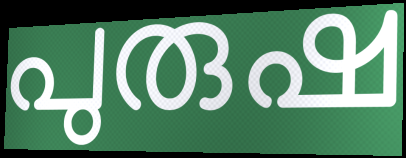
പുരുഷ